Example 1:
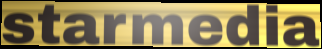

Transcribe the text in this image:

starmedia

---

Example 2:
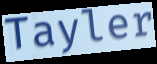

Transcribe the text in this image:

Tayler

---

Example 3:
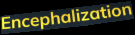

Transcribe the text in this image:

Encephalization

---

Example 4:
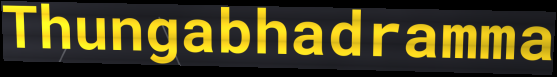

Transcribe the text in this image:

Thungabhadramma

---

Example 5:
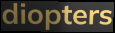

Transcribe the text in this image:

diopters